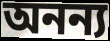
অনন্য